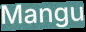
Mangu